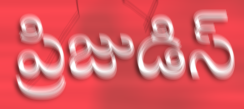
ప్రిజుడిస్